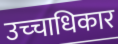
उच्‍चाधिकार